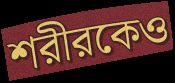
শরীরকেও